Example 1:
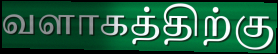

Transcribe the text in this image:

வளாகத்திற்கு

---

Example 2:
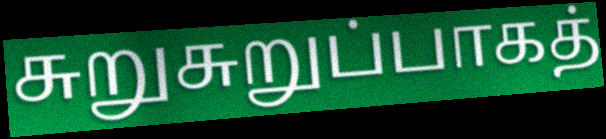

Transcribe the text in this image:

சுறுசுறுப்பாகத்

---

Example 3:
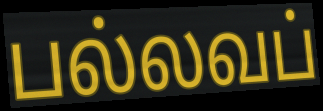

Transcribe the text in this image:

பல்லவப்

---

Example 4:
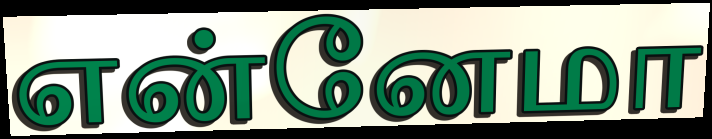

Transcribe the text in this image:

என்னேமா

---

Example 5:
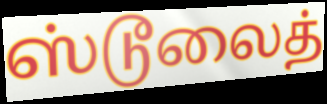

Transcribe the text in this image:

ஸ்டூலைத்